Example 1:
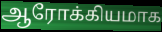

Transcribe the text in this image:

ஆரோக்கியமாக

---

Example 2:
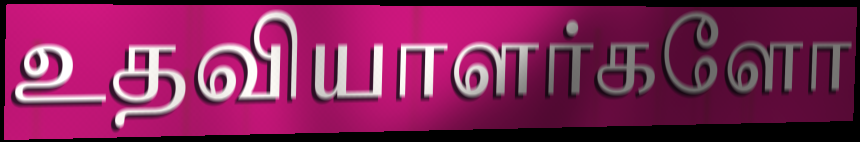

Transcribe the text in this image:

உதவியாளர்களோ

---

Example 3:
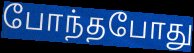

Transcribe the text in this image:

போந்தபோது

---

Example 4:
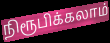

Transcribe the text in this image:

நிரூபிக்கலாம்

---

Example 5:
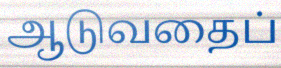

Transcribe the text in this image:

ஆடுவதைப்